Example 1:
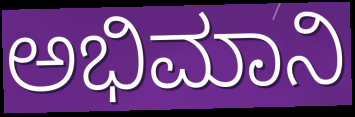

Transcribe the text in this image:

ಅಭಿಮಾನಿ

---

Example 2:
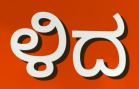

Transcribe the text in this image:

ಳಿದ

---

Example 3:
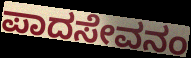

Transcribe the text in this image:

ಪಾದಸೇವನಂ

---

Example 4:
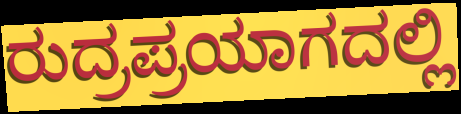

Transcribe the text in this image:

ರುದ್ರಪ್ರಯಾಗದಲ್ಲಿ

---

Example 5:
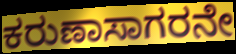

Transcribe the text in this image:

ಕರುಣಾಸಾಗರನೇ